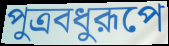
পুত্রবধুরূপে